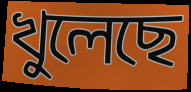
খুলেছে